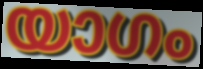
യാഗം